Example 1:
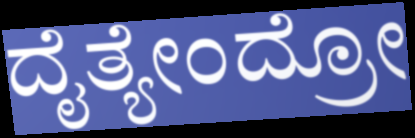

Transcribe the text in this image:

ದೈತ್ಯೇಂದ್ರೋ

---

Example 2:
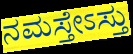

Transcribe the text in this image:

ನಮಸ್ತೇಽಸ್ತು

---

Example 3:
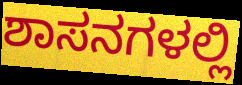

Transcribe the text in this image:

ಶಾಸನಗಳಲ್ಲಿ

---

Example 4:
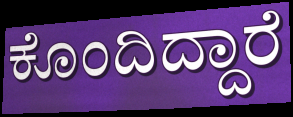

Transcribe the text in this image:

ಕೊಂದಿದ್ದಾರೆ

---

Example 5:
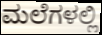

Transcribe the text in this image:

ಮಲೆಗಳಲ್ಲಿ